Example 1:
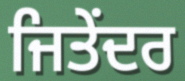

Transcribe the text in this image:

ਜਿਤੇਂਦਰ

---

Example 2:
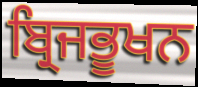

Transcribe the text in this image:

ਬ੍ਰਿਜਭੂਖਨ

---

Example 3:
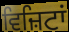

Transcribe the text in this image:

ਵਿਜ਼ਿਟਾਂ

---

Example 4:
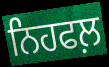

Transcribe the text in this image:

ਨਿਹਫਲ਼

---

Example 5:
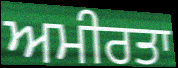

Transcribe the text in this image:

ਅਮੀਰਤਾ